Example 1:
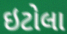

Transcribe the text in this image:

ઇટોલા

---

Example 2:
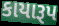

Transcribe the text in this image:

કાયારૂપ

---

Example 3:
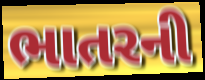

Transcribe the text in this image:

ભાતરની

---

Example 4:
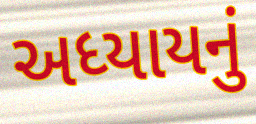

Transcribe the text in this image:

અધ્યાયનું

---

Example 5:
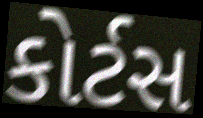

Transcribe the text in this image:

કોર્ટસ